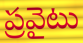
ప్రవైటు